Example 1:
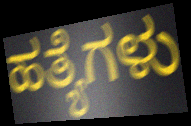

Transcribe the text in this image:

ಹತ್ಯೆಗಳು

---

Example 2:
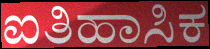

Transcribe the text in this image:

ಐತಿಹಾಸಿಕ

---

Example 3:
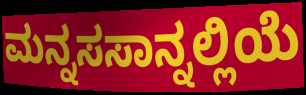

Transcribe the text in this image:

ಮನ್ನಸಸಾನ್ನಲ್ಲಿಯೆ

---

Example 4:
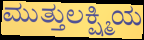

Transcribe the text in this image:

ಮುತ್ತುಲಕ್ಷ್ಮಿಯ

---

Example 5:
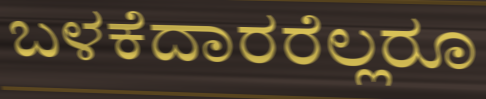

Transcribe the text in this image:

ಬಳಕೆದಾರರೆಲ್ಲರೂ